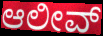
ಆಲೀವ್